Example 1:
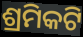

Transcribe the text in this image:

ଶ୍ରମିକଟି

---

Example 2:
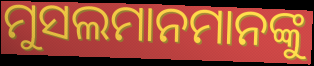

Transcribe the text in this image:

ମୁସଲମାନମାନଙ୍କୁ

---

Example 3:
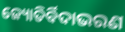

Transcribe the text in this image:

ଜ୍ୟୋତିର୍ବିଦାଭରଣ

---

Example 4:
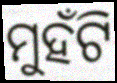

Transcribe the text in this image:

ମୁହଁଟି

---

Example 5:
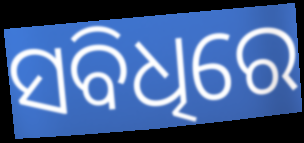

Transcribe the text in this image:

ସବିଧିରେ